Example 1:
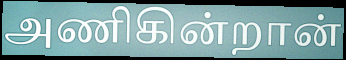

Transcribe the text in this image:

அணிகின்றான்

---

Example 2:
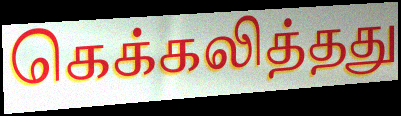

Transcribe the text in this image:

கெக்கலித்தது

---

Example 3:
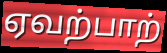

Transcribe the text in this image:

ஏவற்பாற்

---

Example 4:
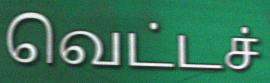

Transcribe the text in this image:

வெட்டச்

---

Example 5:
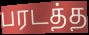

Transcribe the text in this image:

பரடத்த